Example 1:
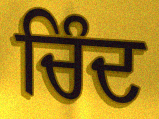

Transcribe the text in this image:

ਚਿੰਦ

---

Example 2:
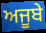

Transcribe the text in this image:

ਅਜੂਬੇ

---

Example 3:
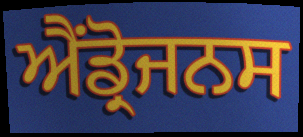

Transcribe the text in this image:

ਐਂਡ੍ਰੋਜਨਸ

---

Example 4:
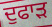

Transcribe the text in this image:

ਦੁਫਾੜ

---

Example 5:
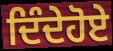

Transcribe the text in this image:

ਦਿੰਦੇਹੋਏ